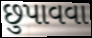
છુપાવવા